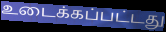
உடைக்கப்பட்டது